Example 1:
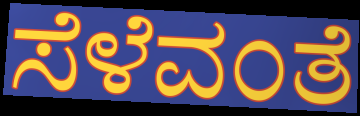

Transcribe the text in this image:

ಸೆಳೆವಂತೆ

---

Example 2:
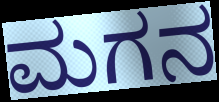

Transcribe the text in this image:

ಮಗನ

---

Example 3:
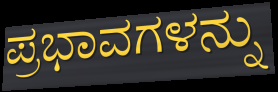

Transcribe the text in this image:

ಪ್ರಭಾವಗಳನ್ನು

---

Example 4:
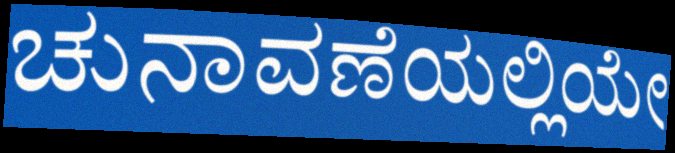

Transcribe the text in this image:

ಚುನಾವಣೆಯಲ್ಲಿಯೇ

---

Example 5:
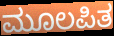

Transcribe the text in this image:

ಮೂಲಪಿತ